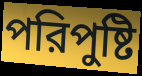
পরিপুষ্টি